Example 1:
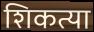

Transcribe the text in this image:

शिकत्या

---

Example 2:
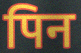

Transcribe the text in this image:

पिन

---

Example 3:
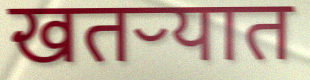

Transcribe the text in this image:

खतऱ्यात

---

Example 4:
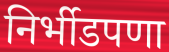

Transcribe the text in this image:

निर्भीडपणा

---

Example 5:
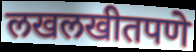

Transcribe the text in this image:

लखलखीतपणे